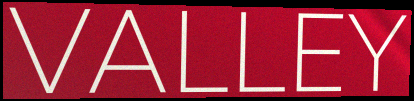
VALLEY